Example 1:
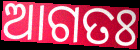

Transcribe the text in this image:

ଆଗତଃ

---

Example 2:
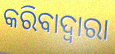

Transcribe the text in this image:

କରିବାଦ୍ବାରା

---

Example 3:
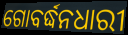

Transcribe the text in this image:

ଗୋବର୍ଦ୍ଧନଧାରୀ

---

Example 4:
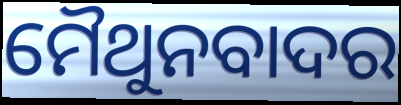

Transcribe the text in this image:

ମୈଥୁନବାଦର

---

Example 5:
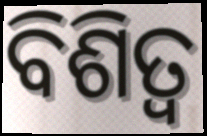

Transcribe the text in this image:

ବିଶିତ୍ଵ